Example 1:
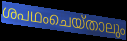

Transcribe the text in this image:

ശപഥംചെയ്താലും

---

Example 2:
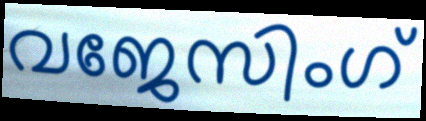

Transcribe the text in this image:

വജേസിംഗ്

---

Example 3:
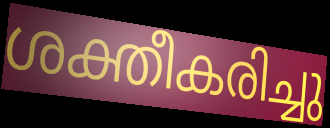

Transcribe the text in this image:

ശക്തീകരിച്ചു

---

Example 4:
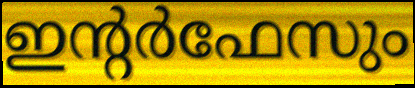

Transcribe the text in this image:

ഇന്റർഫേസും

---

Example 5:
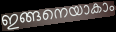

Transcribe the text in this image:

ഇങ്ങനെയാകാം